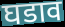
घडाव